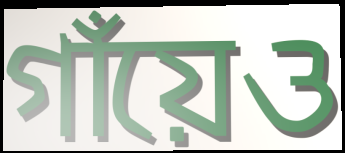
গাঁয়েও